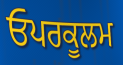
ਓਪਰਕੂਲਮ